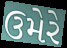
ઉમેરે